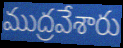
ముద్రవేశారు